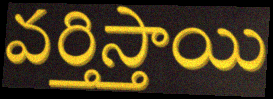
వర్తిస్తాయి